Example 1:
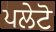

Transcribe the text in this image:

ਪਲੇਟੋ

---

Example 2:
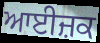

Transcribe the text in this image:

ਆਈਜ਼ਕ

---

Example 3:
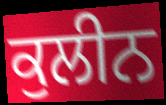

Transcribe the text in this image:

ਕੁਲੀਨ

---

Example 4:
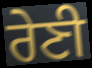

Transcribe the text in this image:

ਰੇਣੀ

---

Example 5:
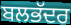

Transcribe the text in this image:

ਬਲਭੱਦਰ